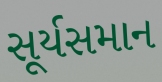
સૂર્યસમાન